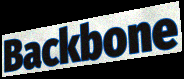
Backbone